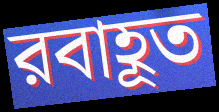
রবাহূত